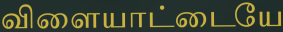
விளையாட்டையே